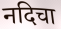
नदिचा